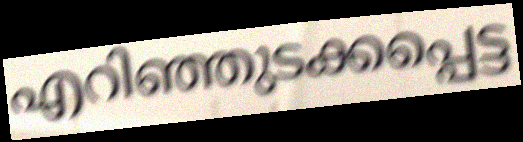
എറിഞ്ഞുടക്കപ്പെട്ട